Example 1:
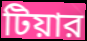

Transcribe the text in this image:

টিয়ার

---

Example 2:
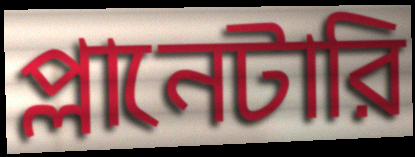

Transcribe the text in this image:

প্লানেটারি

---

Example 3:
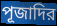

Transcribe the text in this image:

পূজাদির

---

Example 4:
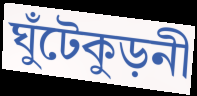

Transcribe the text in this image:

ঘুঁটেকুড়নী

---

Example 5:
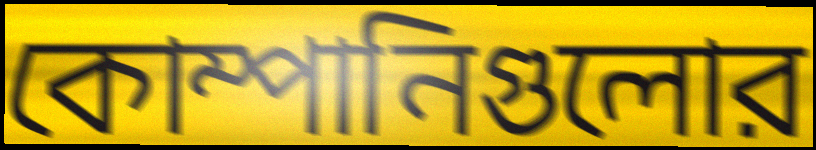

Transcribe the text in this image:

কোম্পানিগুলোর